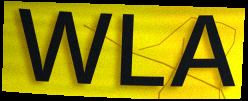
WLA